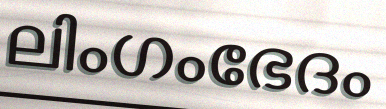
ലിംഗംഭേദം